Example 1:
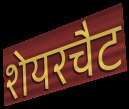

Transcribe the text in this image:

शेयरचैट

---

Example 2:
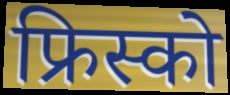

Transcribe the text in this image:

फ्रिस्को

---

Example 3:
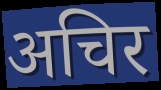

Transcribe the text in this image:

अचिर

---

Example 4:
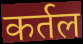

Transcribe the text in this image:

कर्तल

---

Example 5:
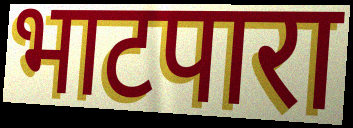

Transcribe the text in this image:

भाटपारा